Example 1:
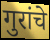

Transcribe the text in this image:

गुरांचे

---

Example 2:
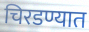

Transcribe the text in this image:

चिरडण्यात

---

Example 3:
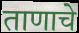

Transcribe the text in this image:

ताणाचे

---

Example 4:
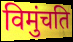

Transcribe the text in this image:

विमुंचति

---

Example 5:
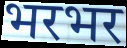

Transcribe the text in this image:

भरभर